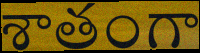
శాతంగా